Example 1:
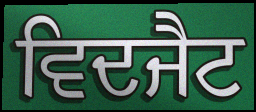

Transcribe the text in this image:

ਵਿਦਜੈਟ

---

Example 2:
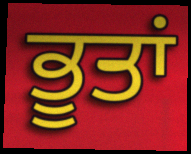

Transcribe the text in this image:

ਭੂਤਾਂ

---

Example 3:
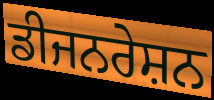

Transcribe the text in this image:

ਡੀਜਨਰੇਸ਼ਨ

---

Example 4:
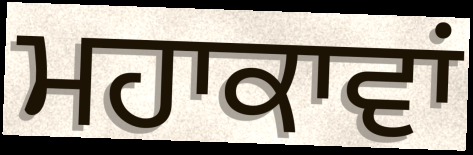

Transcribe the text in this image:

ਮਹਾਕਾਵਾਂ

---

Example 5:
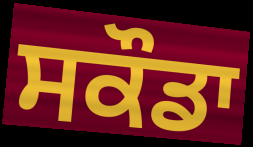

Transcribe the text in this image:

ਸਕੌਡਾ